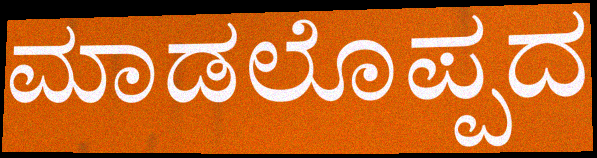
ಮಾಡಲೊಪ್ಪದ